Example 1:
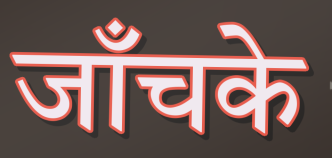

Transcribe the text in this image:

जाँचके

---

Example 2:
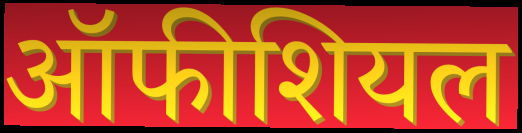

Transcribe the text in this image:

ऑफीशियल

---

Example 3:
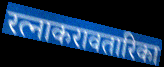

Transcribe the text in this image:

रत्नाकरावतारिका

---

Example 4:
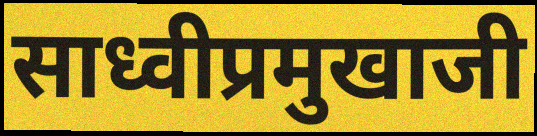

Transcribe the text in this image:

साध्वीप्रमुखाजी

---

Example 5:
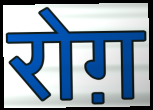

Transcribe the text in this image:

रोग़